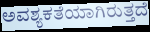
ಅವಶ್ಯಕತೆಯಾಗಿರುತ್ತದೆ